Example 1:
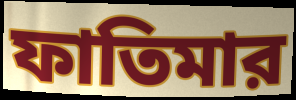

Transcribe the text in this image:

ফাতিমার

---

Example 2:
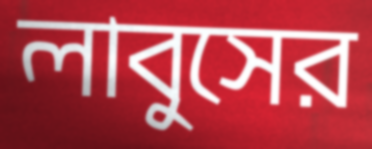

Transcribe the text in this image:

লাবুসের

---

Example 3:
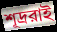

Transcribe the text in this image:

শূদ্ররাই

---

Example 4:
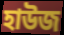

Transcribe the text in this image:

হাউজ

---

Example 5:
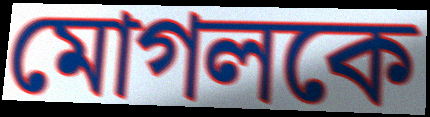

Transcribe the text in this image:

মোগলকে